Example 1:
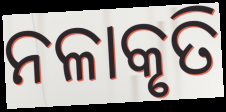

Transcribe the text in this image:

ନଳାକୃତି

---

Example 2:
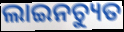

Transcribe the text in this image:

ଲାଇନଚ୍ୟୁତ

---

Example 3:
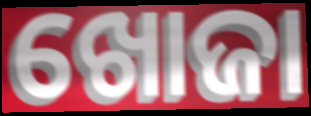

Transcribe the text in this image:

ଖୋଜା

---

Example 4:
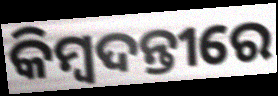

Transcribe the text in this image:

କିମ୍ବଦନ୍ତୀରେ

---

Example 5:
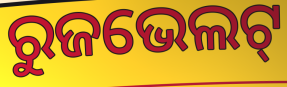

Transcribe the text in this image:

ରୁଜଭେଲଟ୍